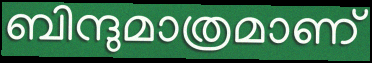
ബിന്ദുമാത്രമാണ്